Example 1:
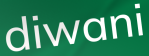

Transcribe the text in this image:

diwani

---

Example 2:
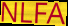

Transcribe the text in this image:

NLFA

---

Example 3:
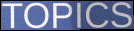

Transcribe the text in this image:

TOPICS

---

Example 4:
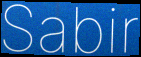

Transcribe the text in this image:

Sabir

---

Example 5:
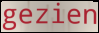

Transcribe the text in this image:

gezien